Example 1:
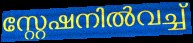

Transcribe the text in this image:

സ്റ്റേഷനിൽവച്ച്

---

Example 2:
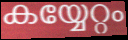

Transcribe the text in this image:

കയ്യേറ്റം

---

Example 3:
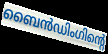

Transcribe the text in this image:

ബൈൻഡിംഗിന്റെ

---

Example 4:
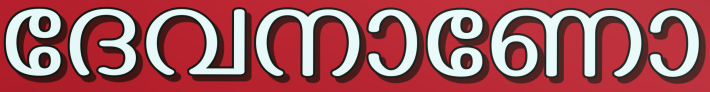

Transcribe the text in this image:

ദേവനാണോ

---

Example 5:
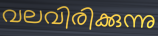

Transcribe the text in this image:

വലവിരിക്കുന്നു